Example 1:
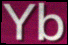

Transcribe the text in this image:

Yb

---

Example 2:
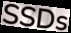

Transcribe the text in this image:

SSDs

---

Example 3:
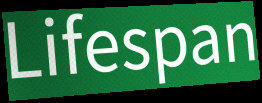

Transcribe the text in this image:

Lifespan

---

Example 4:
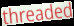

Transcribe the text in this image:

threaded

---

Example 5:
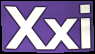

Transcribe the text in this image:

Xxi